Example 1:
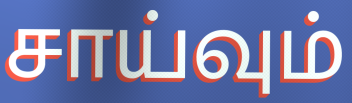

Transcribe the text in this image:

சாய்வும்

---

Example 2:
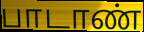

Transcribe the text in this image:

பாடாண்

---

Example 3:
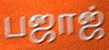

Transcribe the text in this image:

பஜாஜ்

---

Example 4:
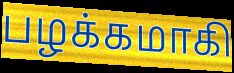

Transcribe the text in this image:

பழக்கமாகி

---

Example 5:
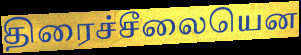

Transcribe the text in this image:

திரைச்சீலையென